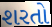
શરતો